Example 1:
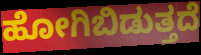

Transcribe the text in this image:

ಹೋಗಿಬಿಡುತ್ತದೆ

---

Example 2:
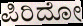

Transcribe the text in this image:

ಪಿರಿದೋ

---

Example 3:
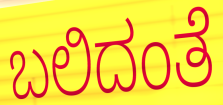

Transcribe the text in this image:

ಬಲಿದಂತೆ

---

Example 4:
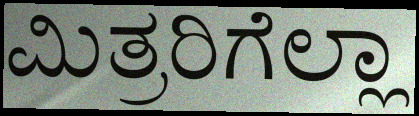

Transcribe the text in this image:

ಮಿತ್ರರಿಗೆಲ್ಲಾ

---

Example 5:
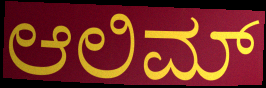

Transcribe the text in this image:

ಆಲಿಮ್